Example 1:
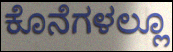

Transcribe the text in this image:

ಕೊನೆಗಳಲ್ಲೂ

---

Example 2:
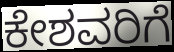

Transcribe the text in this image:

ಕೇಶವರಿಗೆ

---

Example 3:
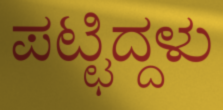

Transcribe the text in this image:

ಪಟ್ಟಿದ್ದಳು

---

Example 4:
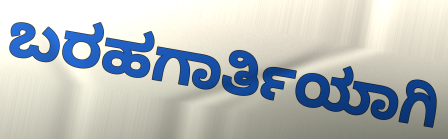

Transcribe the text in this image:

ಬರಹಗಾರ್ತಿಯಾಗಿ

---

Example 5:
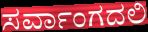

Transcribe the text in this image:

ಸರ್ವಾಂಗದಲಿ